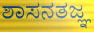
ಶಾಸನತಜ್ಞ